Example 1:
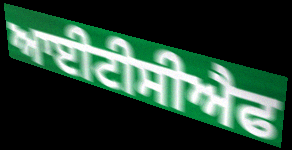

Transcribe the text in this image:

ਆਈਟੀਸੀਐਫ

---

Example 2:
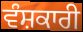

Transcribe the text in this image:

ਵੰਸ਼ਕਾਰੀ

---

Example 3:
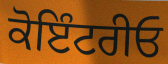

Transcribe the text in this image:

ਕੋਇੰਟਰੀਓ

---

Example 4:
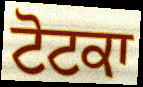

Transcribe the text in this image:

ਟੋਟਕਾ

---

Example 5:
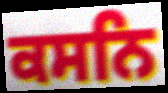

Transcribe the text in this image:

ਕਸਨਿ